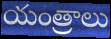
యంత్రాలు